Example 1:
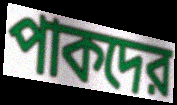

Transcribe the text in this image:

পাকদের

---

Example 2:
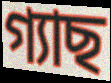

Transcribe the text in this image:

গ্যাছ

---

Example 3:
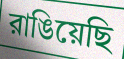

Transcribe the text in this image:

রাঙিয়েছি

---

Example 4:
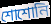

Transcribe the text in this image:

শোশোনি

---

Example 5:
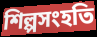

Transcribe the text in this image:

শিল্পসংহতি